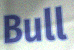
Bull